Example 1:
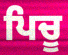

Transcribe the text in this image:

ਪਿਚੂ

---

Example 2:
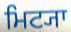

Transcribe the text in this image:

ਮਿਟ੍ਯਾ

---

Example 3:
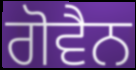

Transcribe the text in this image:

ਗੋਵੈਨ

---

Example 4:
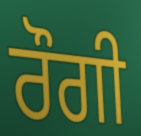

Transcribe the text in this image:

ਰੌਗੀ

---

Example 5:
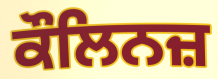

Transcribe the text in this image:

ਕੌਲਿਨਜ਼